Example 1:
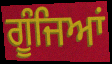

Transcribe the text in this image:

ਗੂੰਜਿਆਂ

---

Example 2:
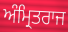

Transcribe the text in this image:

ਅੰਮ੍ਰਿਤਰਾਜ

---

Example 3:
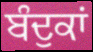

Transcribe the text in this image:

ਬੰਦੁਕਾਂ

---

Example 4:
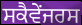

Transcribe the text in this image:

ਸਕੈਵੇਂਜਰਸ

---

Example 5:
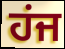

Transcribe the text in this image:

ਹਂਜ